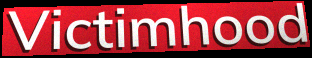
Victimhood